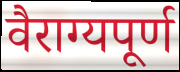
वैराग्यपूर्ण